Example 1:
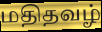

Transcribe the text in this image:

மதிதவழ்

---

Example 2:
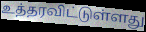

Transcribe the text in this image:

உத்தரவிட்டுள்ளது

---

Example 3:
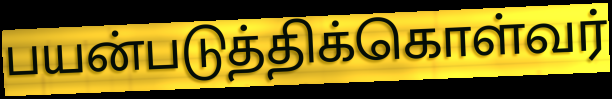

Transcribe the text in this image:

பயன்படுத்திக்கொள்வர்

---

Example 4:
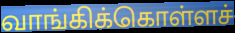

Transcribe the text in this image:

வாங்கிக்கொள்ளச்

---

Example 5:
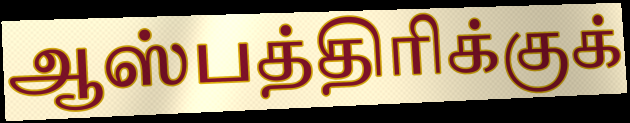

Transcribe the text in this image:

ஆஸ்பத்திரிக்குக்